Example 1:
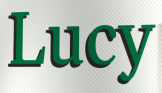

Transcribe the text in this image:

Lucy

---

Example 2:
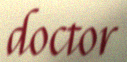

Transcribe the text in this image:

doctor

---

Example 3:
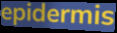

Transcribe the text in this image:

epidermis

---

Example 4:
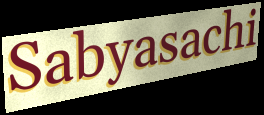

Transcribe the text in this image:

Sabyasachi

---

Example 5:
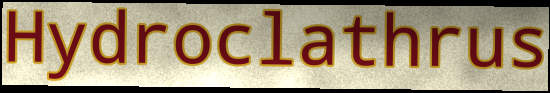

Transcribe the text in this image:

Hydroclathrus